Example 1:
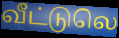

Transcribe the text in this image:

வீட்டுலெ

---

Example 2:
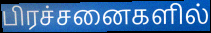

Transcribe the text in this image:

பிரச்சனைகளில்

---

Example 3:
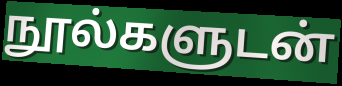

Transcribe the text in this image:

நூல்களுடன்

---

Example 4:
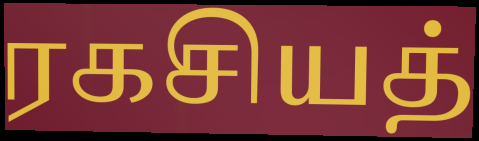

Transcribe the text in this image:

ரகசியத்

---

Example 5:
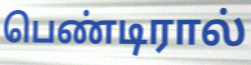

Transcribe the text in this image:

பெண்டிரால்